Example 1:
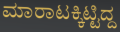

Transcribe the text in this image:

ಮಾರಾಟಕ್ಕಿಟ್ಟಿದ್ದ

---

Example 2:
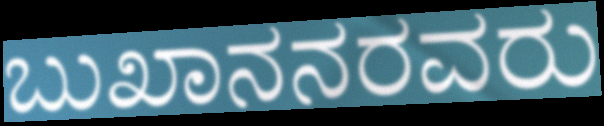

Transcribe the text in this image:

ಬುಖಾನನರವರು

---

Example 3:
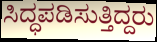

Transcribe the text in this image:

ಸಿದ್ಧಪಡಿಸುತ್ತಿದ್ದರು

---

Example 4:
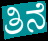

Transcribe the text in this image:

ತಿನೆ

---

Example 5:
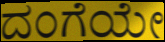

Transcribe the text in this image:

ದಂಗೆಯೇ